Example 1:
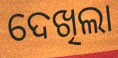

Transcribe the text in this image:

ଦେଖିଲା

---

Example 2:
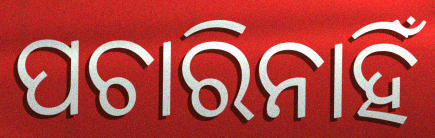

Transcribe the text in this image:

ପଚାରିନାହିଁ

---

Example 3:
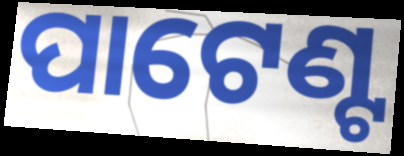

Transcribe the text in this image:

ପାଟେଣ୍ଟ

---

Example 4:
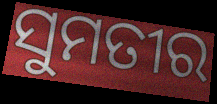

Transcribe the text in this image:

ସୁମତୀର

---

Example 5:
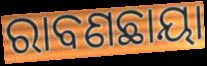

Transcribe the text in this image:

ରାବଣଛାୟା